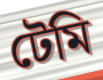
টেমি